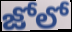
జోలో